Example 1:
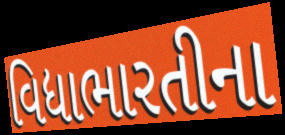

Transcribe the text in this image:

વિદ્યાભારતીના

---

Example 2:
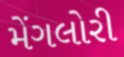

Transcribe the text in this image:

મેંગલોરી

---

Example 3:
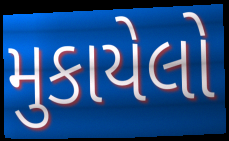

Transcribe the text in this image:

મુકાયેલો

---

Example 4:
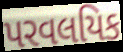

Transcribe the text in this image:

પરવલયિક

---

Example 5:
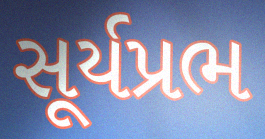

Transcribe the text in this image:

સૂર્યપ્રભ